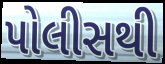
પોલીસથી